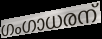
ഗംഗാധരന്